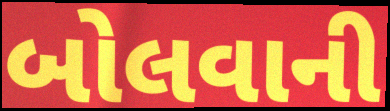
બોલવાની